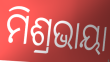
ମିଶ୍ରଭାୟା